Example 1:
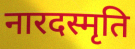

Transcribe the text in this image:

नारदस्मृति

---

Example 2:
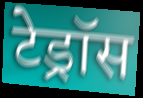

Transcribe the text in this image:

टेड्रॉस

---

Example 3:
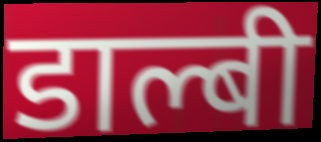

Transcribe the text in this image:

डाल्बी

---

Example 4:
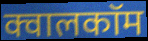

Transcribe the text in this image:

क्‍वालकॉम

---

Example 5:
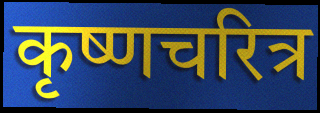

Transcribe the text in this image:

कृष्णचरित्र